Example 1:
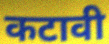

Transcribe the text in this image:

कटावी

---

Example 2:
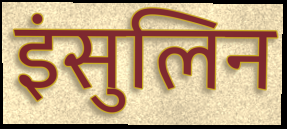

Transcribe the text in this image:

इंसुलिन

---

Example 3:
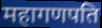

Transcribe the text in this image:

महागणपति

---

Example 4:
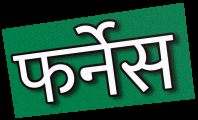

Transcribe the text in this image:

फर्नेस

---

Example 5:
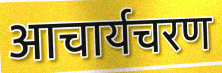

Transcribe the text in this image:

आचार्यचरण